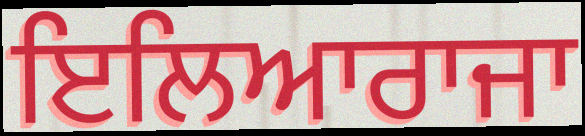
ਇਲਿਆਰਾਜਾ